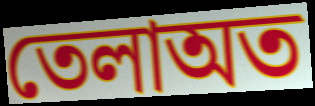
তেলাঅত